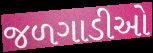
જળગાડીઓ